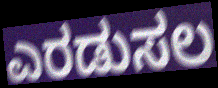
ಎರಡುಸಲ